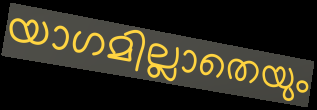
യാഗമില്ലാതെയും